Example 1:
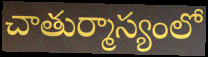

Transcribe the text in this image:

చాతుర్మాస్యంలో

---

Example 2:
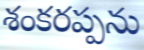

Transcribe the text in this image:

శంకరప్పను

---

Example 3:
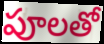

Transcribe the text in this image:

పూలతో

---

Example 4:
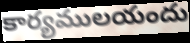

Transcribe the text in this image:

కార్యములయందు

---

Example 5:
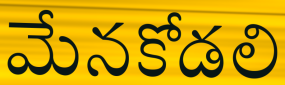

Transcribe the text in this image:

మేనకోడలి